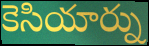
కెసియార్ను